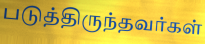
படுத்திருந்தவர்கள்